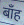
बाँह